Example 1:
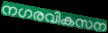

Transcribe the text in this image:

നഗരവികസന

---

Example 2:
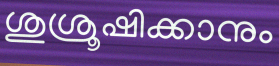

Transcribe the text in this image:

ശുശ്രൂഷിക്കാനും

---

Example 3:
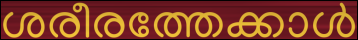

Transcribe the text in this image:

ശരീരത്തേക്കാൾ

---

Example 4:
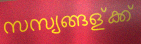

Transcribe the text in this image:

സസ്യങ്ങള്ക്ക്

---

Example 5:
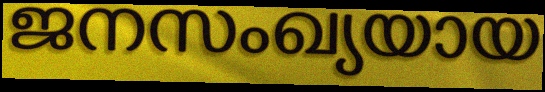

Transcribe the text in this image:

ജനസംഖ്യയായ